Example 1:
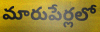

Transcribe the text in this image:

మారుపేర్లలో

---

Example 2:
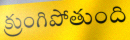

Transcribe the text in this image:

క్రుంగిపోతుంది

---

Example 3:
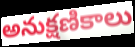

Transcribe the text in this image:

అనుక్షణికాలు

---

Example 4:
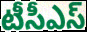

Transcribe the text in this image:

టీసీఎస్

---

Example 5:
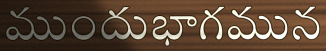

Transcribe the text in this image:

ముందుభాగమున